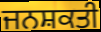
ਜਨਸ਼ਕਤੀ